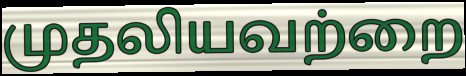
முதலியவற்றை